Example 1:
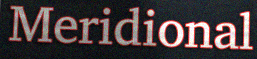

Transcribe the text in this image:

Meridional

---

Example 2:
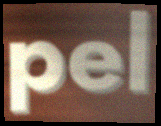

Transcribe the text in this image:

pel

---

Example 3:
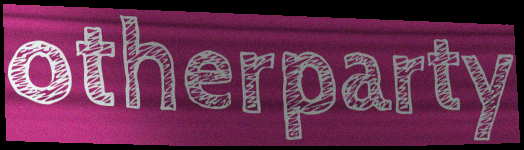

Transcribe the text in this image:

otherparty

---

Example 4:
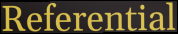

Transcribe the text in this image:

Referential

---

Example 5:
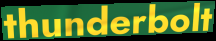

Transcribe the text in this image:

thunderbolt